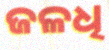
ଜଳଧି